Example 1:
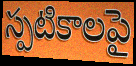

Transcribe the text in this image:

స్పటికాలపై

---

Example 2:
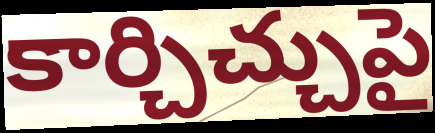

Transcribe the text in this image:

కార్చిచ్చుపై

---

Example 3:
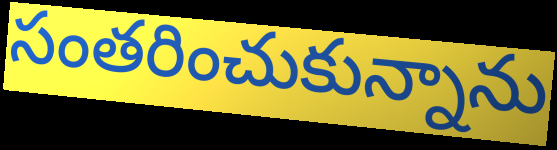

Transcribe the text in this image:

సంతరించుకున్నాను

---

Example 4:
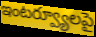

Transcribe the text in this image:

ఇంటర్వ్యూలపై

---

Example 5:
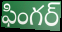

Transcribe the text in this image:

ఫింగర్